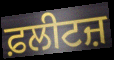
ਫ਼ਲੀਟਜ਼